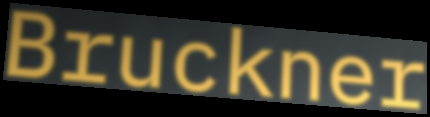
Bruckner